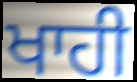
ਖਾਹੀ